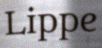
Lippe